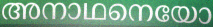
അനാഥനെയോ